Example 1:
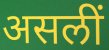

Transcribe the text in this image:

असलीं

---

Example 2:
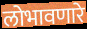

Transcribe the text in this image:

लोभावणारे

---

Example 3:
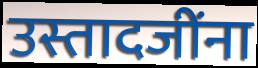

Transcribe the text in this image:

उस्तादजींना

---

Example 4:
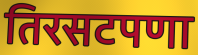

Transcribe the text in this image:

तिरसटपणा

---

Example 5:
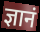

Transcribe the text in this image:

ज्ञानं